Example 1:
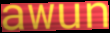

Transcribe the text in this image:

awun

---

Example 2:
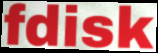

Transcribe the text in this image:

fdisk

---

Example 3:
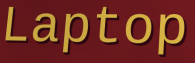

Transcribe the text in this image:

Laptop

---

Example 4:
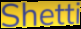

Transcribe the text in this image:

Shetti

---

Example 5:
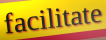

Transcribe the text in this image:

facilitate